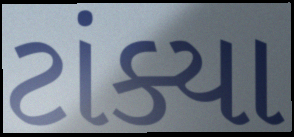
ટાંક્યા